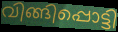
വിങ്ങിപ്പൊട്ടി